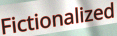
Fictionalized